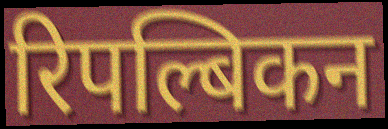
रिपल्बिकन